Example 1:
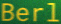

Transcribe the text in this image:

Berl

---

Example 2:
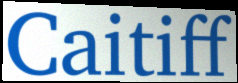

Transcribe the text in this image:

Caitiff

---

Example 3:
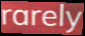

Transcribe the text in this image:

rarely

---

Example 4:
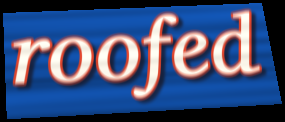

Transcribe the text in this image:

roofed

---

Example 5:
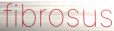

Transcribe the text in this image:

fibrosus